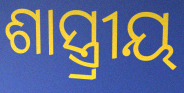
ଶାସ୍ତ୍ର୍ରୀୟ